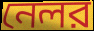
নেলর